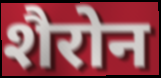
शैरोन